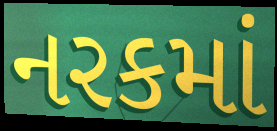
નરકમાં